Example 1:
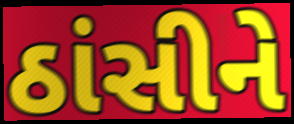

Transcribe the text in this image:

ઠાંસીને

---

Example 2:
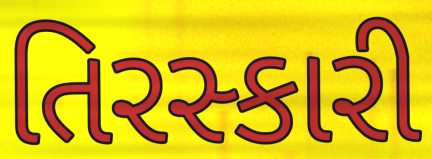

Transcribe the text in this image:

તિરસ્કારી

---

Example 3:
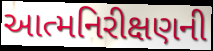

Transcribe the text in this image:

આત્મનિરીક્ષણની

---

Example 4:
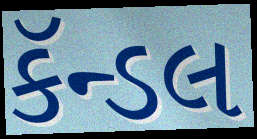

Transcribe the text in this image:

કૅન્ડલ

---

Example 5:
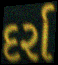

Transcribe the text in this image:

દર્રા